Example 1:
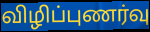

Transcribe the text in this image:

விழிப்புணர்வு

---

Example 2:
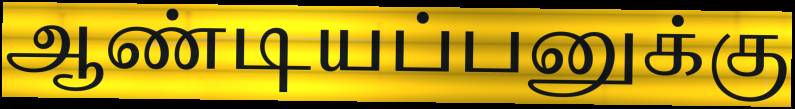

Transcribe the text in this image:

ஆண்டியப்பனுக்கு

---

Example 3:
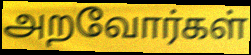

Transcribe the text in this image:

அறவோர்கள்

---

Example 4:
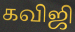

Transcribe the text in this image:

கவிஜி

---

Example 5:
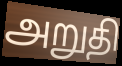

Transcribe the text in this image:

அறுதி